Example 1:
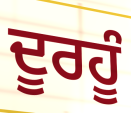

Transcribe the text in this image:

ਦੂਰਹੂੰ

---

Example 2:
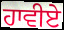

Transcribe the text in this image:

ਹਾਵੀਏ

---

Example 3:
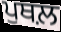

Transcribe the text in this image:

ਪੁਥਲ਼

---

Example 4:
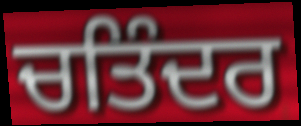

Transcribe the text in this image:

ਚਤਿੰਦਰ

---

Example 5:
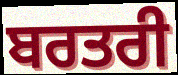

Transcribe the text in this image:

ਬਰਤਰੀ